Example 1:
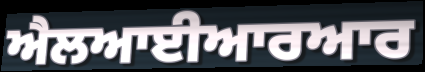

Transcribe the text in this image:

ਐਲਆਈਆਰਆਰ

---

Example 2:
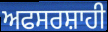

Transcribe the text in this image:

ਅਫਸਰਸ਼ਾਹੀ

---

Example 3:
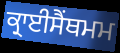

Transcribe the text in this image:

ਕ੍ਰਾਈਸੈਂਥਮਮ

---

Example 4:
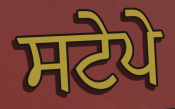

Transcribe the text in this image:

ਸਟੇਪੇ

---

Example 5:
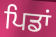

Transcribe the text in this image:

ਪਿਡਾਂ